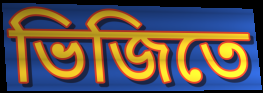
ভিজিতে